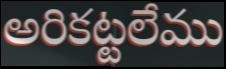
అరికట్టలేము